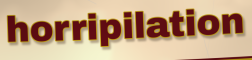
horripilation